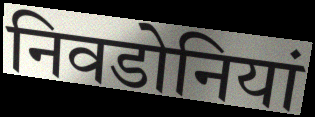
निवडोनियां